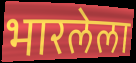
भारलेला